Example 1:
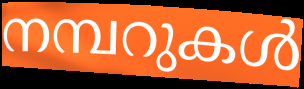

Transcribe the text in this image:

നമ്പറുകൾ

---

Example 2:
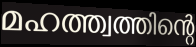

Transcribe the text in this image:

മഹത്ത്വത്തിന്റെ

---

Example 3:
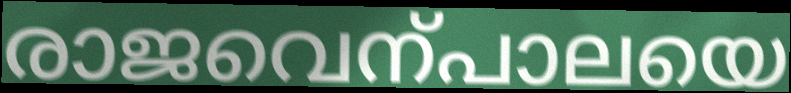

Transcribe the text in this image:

രാജവെന്പാലയെ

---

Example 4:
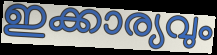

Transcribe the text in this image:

ഇക്കാര്യവും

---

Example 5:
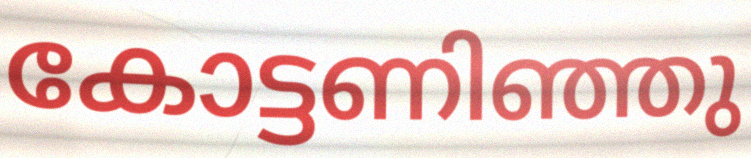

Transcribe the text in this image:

കോട്ടണിഞ്ഞു